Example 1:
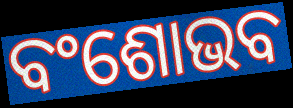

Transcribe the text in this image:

ବଂଶୋଭବ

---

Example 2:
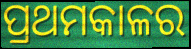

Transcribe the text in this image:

ପ୍ରଥମକାଳର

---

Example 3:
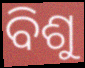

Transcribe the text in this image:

ବିଶୁ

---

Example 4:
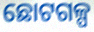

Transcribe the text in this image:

ଛୋଟଗଳ୍ପ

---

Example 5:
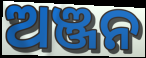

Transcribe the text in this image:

ଅଞ୍ଜନ